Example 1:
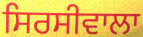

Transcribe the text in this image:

ਸਿਰਸੀਵਾਲਾ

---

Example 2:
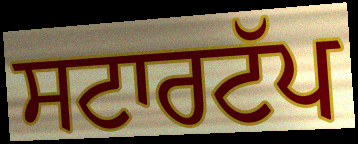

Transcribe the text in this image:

ਸਟਾਰਟੱਪ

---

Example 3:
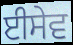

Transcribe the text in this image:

ਈਸੇਵ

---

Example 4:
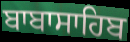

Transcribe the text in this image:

ਬਾਬਾਸਾਹਿਬ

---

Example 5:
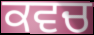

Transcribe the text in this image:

ਕਵਚ